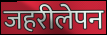
जहरीलेपन